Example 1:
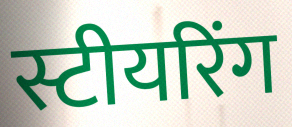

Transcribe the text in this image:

स्टीयरिंग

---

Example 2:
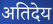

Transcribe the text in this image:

अतिदेय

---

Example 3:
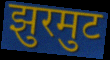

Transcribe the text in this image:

झुरमुट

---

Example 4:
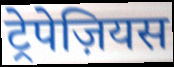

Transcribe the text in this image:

ट्रेपेज़ियस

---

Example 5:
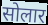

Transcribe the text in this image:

सोलार